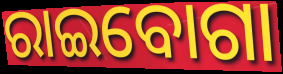
ରାଇବୋଗା